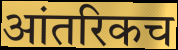
आंतरिकच